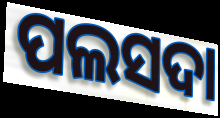
ପଲସଦା